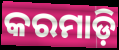
କରମାଡ଼ି